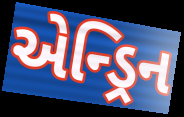
એન્ડ્રિન